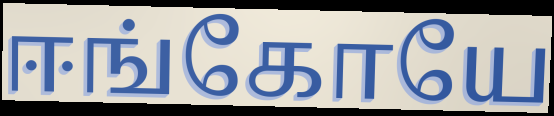
ஈங்கோயே